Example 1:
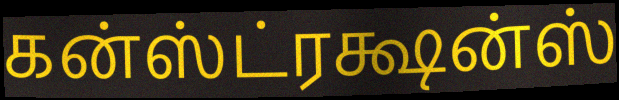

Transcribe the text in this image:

கன்ஸ்ட்ரக்ஷன்ஸ்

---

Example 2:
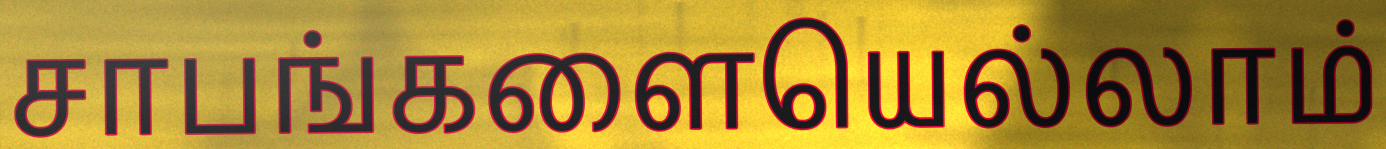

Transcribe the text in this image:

சாபங்களையெல்லாம்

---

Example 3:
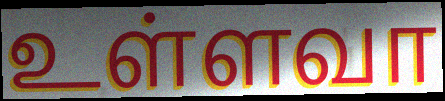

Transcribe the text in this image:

உள்ளவா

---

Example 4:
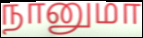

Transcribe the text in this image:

நானுமா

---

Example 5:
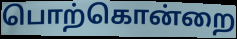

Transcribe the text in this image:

பொற்கொன்றை